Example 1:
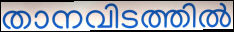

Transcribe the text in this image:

താനവിടത്തിൽ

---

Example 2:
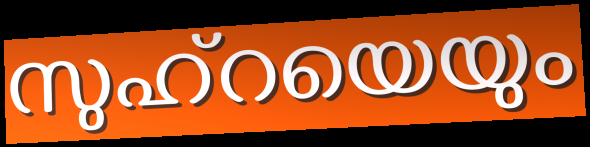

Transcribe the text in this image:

സുഹ്റയെയും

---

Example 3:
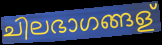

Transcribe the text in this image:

ചിലഭാഗങ്ങള്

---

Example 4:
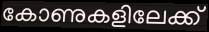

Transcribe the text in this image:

കോണുകളിലേക്ക്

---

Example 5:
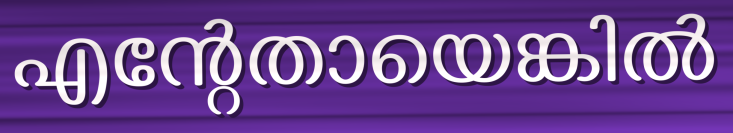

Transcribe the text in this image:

എന്റേതായെങ്കിൽ